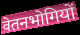
वेतनभोगियों